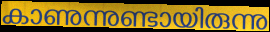
കാണുന്നുണ്ടായിരുന്നു